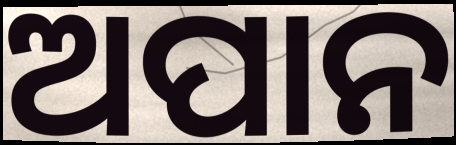
ଅପାନ